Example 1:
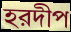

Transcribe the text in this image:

হরদীপ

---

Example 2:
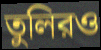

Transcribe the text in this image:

তুলিরও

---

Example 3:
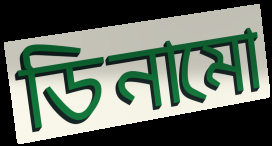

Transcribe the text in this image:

ডিনামো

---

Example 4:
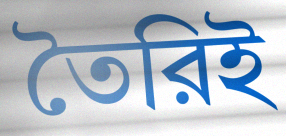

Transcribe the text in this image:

তৈরিই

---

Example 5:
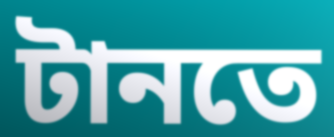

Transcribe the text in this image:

টানতে